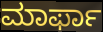
ಮಾರ್ಫಾ